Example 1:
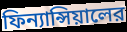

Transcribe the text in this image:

ফিন্যান্সিয়ালের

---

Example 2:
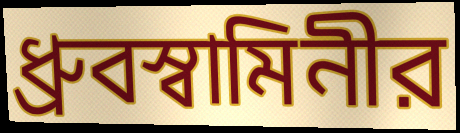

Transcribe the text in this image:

ধ্রুবস্বামিনীর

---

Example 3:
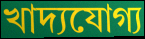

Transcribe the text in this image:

খাদ্যযোগ্য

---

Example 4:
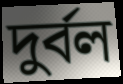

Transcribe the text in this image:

দুর্বল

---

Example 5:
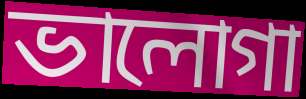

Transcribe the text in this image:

ভালোগা